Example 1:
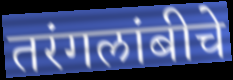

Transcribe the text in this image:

तरंगलांबीचे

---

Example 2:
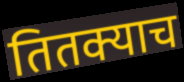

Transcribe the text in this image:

तितक्याच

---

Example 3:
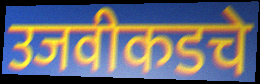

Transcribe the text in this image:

उजवीकडचे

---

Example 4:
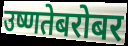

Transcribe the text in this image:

उष्णतेबरोबर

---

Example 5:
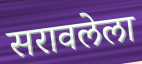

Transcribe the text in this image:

सरावलेला